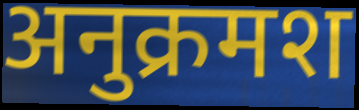
अनुक्रमश